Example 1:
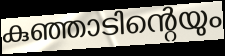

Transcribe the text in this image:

കുഞ്ഞാടിന്റെയും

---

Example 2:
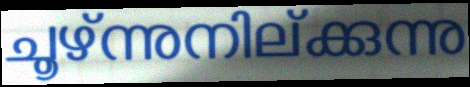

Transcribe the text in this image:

ചൂഴ്ന്നുനില്ക്കുന്നു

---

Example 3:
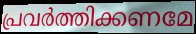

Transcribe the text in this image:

പ്രവർത്തിക്കണമേ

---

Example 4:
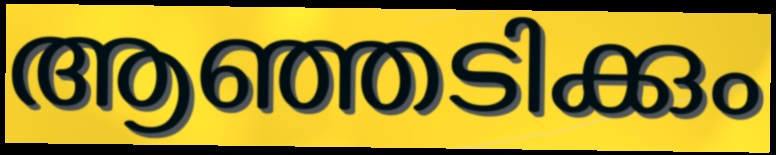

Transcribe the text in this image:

ആഞ്ഞടിക്കും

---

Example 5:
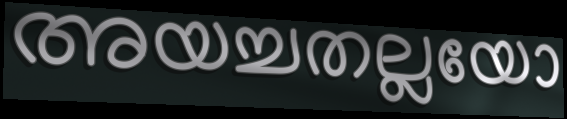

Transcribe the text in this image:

അയച്ചതല്ലയോ